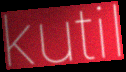
kutil